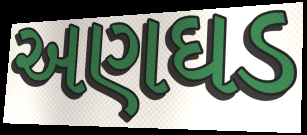
અણઘડ